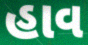
હાવ